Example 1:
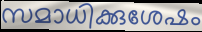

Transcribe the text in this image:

സമാധിക്കുശേഷം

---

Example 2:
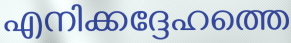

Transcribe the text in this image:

എനിക്കദ്ദേഹത്തെ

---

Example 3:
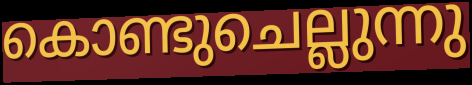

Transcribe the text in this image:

കൊണ്ടുചെല്ലുന്നു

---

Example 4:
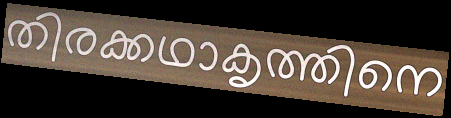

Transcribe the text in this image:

തിരക്കഥാകൃത്തിനെ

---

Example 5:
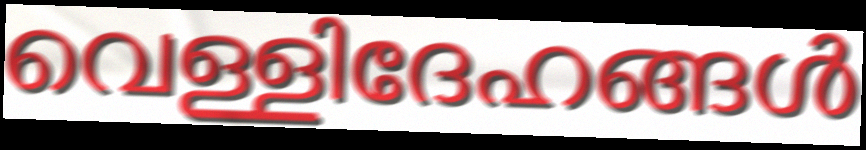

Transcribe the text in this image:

വെള്ളിദേഹങ്ങൾ